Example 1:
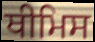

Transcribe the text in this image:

ਥੀਮਿਸ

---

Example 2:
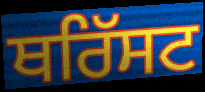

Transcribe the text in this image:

ਥਰਿੱਸਟ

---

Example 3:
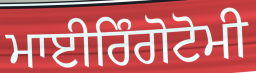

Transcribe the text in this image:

ਮਾਈਰਿੰਗੋਟੋਮੀ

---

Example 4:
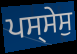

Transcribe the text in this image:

ਪਸ੍ਸੇਸੁ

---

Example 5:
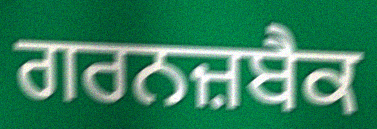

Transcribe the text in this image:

ਗਰਨਜ਼ਬੈਕ